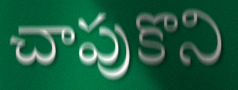
చాపుకొని